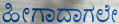
ಹೀಗಾದಾಗಲೇ